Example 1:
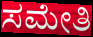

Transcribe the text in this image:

ಸಮೇತಿ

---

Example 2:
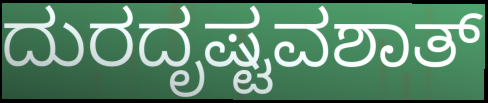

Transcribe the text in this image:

ದುರದೃಷ್ಟವಶಾತ್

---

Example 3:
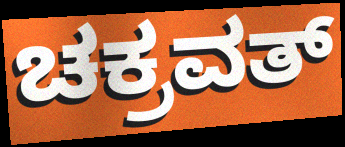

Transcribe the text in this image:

ಚಕ್ರವತ್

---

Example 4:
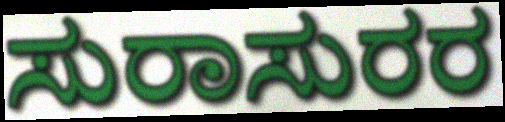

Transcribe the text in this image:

ಸುರಾಸುರರ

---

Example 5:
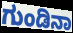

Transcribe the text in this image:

ಗುಂಡಿನಾ